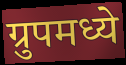
ग्रुपमध्ये